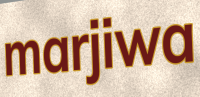
marjiwa